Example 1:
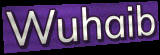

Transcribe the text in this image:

Wuhaib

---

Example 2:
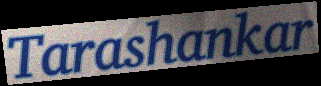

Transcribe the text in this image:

Tarashankar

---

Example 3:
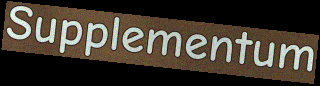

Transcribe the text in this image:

Supplementum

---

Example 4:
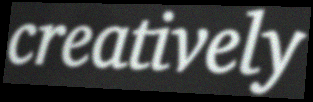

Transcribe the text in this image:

creatively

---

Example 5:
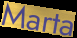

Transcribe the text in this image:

Marta